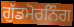
ਗੁੱਡਮੋਰਨਿੰਗ